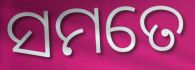
ସମତେ